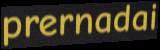
prernadai